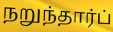
நறுந்தார்ப்